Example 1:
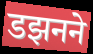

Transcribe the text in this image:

डझनने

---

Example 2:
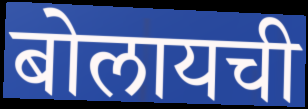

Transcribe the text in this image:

बोलायची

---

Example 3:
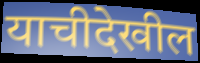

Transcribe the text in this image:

याचीदेखील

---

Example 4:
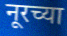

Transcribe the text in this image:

नूरच्या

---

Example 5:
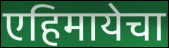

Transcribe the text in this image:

एहिमायेचा